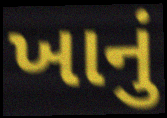
ખાનું